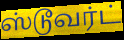
ஸ்டூவர்ட்